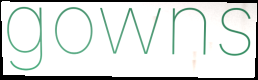
gowns